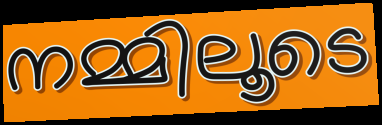
നമ്മിലൂടെ